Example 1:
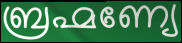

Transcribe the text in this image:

ബ്രഹ്മണ്യേ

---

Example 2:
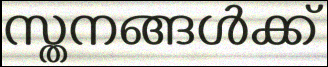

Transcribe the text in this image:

സ്തനങ്ങൾക്ക്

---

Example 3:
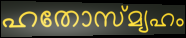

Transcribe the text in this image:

ഹതോസ്മ്യഹം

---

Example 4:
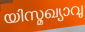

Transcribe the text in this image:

യിസ്മഖ്യാവു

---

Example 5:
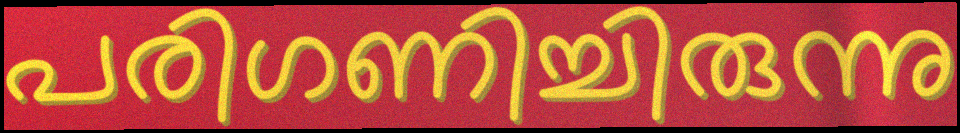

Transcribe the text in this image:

പരിഗണിച്ചിരുന്നു